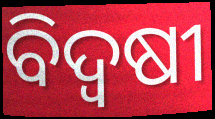
ବିଦ୍ୱଷୀ